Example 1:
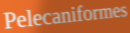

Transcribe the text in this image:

Pelecaniformes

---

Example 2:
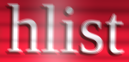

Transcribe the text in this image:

hlist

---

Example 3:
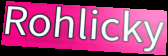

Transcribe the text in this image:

Rohlicky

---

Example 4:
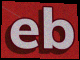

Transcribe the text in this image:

eb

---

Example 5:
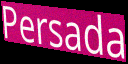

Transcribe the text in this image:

Persada